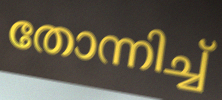
തോന്നിച്ച്